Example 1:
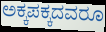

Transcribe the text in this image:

ಅಕ್ಕಪಕ್ಕದವರೂ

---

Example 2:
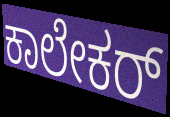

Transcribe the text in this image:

ಕಾಲೇಕರ್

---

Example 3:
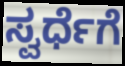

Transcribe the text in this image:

ಸ್ವರ್ಧೆಗೆ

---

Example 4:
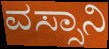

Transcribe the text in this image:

ವಸ್ಸಾನಿ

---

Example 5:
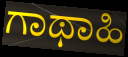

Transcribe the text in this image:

ಗಾಥಾಹಿ